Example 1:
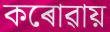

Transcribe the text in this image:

কৰোৱায়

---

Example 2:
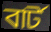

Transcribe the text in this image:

বাৰ্ট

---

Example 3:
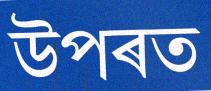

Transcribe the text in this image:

উপৰত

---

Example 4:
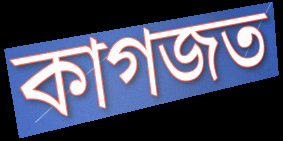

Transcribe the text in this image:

কাগজত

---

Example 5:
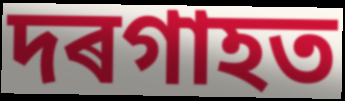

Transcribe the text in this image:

দৰগাহত